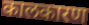
कालकारण